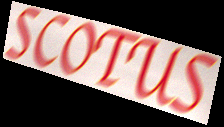
SCOTUS